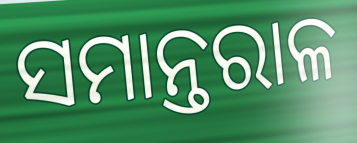
ସମାନ୍ତରାଳ